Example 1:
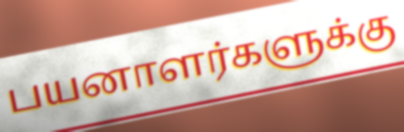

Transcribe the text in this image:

பயனாளர்களுக்கு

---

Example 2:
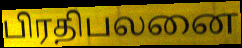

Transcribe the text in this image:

பிரதிபலனை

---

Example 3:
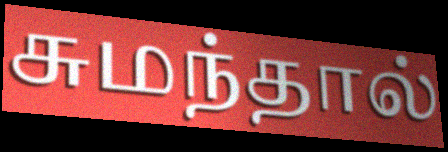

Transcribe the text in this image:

சுமந்தால்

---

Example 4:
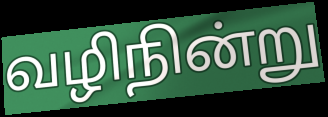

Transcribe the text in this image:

வழிநின்று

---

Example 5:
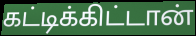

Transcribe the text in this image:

கட்டிக்கிட்டான்